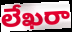
లేఖరా